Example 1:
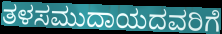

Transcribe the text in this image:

ತಳಸಮುದಾಯದವರಿಗೆ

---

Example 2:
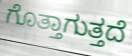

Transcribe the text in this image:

ಗೊತ್ತಾಗುತ್ತದೆ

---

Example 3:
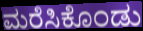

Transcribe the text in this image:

ಮರೆಸಿಕೊಂಡು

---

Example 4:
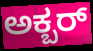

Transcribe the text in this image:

ಅಕ್ಬರ್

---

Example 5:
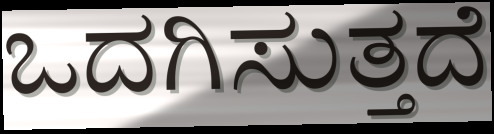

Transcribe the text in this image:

ಒದಗಿಸುತ್ತದೆ